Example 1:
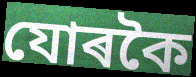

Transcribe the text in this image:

যোৰকৈ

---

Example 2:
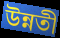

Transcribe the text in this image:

উন্নতী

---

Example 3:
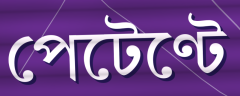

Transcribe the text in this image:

পেটেণ্টে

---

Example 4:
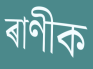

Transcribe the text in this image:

ৰাণীক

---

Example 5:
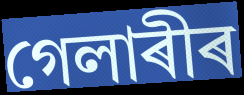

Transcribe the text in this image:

গেলাৰীৰ